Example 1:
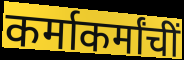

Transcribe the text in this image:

कर्माकर्मांचीं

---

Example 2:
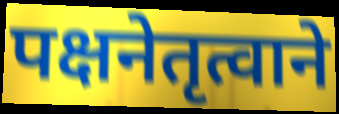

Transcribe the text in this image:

पक्षनेतृत्वाने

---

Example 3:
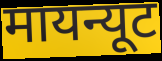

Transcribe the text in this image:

मायन्यूट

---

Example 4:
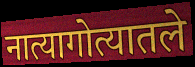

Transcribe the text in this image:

नात्यागोत्यातले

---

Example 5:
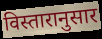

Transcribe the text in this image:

विस्तारानुसार